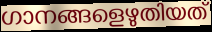
ഗാനങ്ങളെഴുതിയത്